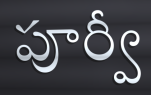
పూర్వీ